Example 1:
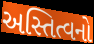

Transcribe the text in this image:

અસ્તિત્વનો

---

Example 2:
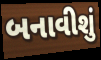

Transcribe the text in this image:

બનાવીશું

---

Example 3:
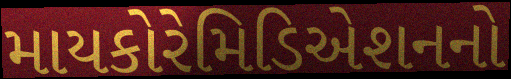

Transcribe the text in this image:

માયકોરેમિડિએશનનો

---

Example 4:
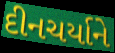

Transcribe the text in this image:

દીનચર્યાને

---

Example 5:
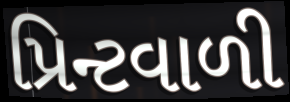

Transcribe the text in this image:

પ્રિન્ટવાળી